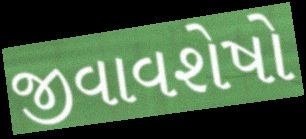
જીવાવશેષો